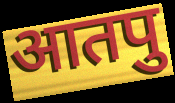
आतपु